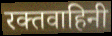
रक्तवाहिनी